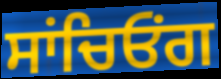
ਸਾਂਚਿਓਂਗ